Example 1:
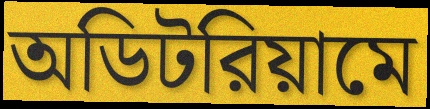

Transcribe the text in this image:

অডিটরিয়ামে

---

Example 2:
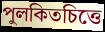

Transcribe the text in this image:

পুলকিতচিত্তে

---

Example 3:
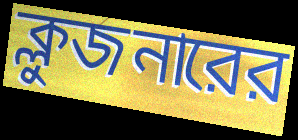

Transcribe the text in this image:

ক্লুজনারের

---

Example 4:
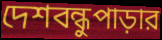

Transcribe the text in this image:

দেশবন্ধুপাড়ার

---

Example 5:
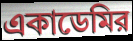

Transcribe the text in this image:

একাডেমির